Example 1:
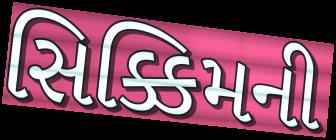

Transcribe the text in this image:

સિક્કિમની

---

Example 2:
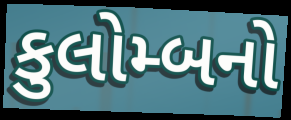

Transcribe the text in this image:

કુલોમ્બનો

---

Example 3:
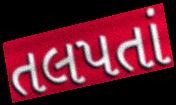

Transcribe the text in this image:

તલપતાં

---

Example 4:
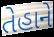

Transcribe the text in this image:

તેહાને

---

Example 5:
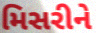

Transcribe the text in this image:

મિસરીને